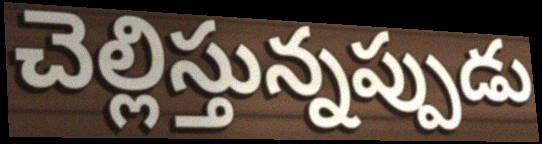
చెల్లిస్తున్నప్పుడు